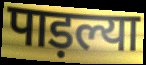
पाड़ल्या